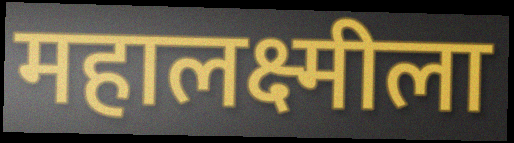
महालक्ष्मीला